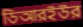
ডিআরইউর